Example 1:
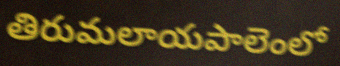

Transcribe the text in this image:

తిరుమలాయపాలెంలో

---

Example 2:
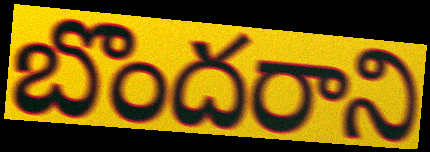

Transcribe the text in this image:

బొందరాని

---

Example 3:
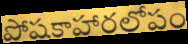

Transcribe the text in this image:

పోషకాహారలోపం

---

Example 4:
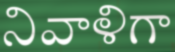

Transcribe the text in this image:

నివాళిగా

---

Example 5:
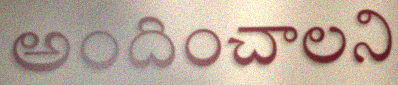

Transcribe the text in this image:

అందించాలని